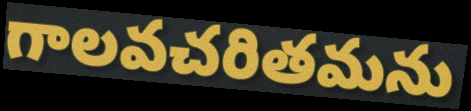
గాలవచరితమను